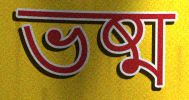
ভষ্ম